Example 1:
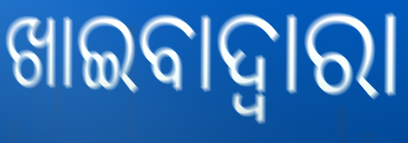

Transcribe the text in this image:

ଖାଇବାଦ୍ଵାରା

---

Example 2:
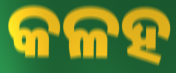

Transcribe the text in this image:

କଳହ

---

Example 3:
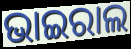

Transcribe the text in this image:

ଭାଇରାଲ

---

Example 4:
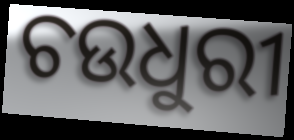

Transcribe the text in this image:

ଚଉଧୁରୀ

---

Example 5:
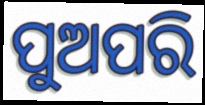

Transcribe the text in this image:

ପୁଅପରି